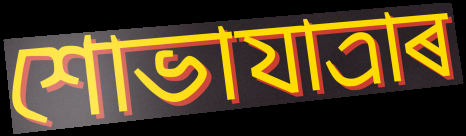
শোভাযাত্ৰাৰ